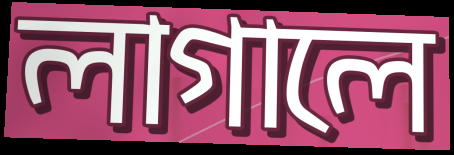
লাগালে